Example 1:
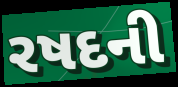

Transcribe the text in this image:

રષદની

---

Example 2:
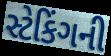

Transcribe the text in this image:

સ્ટેકિંગની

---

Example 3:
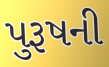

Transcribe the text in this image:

પુરૂષની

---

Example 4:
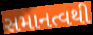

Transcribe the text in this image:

સમાનત્વથી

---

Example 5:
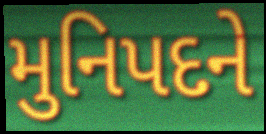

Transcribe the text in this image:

મુનિપદને